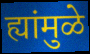
ह्यांमुळे